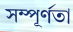
সম্পূর্ণতা